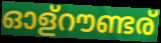
ഓള്റൗണ്ടര്